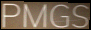
PMGS